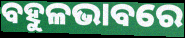
ବହୁଳଭାବରେ